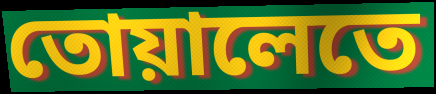
তোয়ালেতে